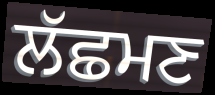
ਲੱਛਮਣ